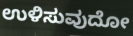
ಉಳಿಸುವುದೋ